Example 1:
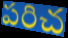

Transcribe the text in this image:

పరిచ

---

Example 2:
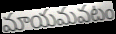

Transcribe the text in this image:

మాయమవటం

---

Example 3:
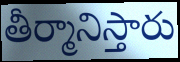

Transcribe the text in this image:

తీర్మానిస్తారు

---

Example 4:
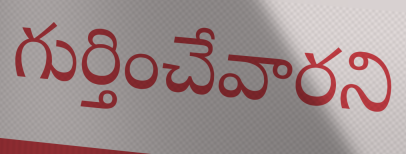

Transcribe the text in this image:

గుర్తించేవారని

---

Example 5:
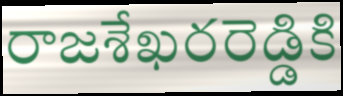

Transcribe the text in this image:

రాజశేఖరరెడ్డికి